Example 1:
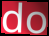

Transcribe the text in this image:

do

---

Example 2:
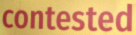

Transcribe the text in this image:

contested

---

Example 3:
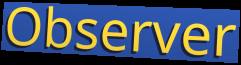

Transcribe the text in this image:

Observer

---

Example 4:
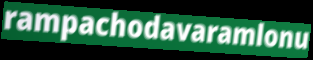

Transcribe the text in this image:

rampachodavaramlonu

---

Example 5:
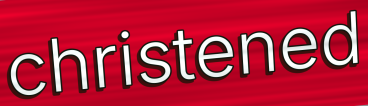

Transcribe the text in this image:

christened